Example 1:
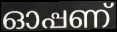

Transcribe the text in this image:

ഓപ്പണ്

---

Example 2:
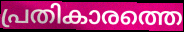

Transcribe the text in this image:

പ്രതികാരത്തെ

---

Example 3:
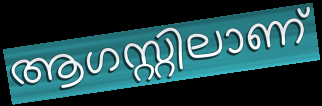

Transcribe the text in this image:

ആഗസ്റ്റിലാണ്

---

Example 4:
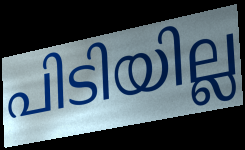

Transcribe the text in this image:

പിടിയില്ല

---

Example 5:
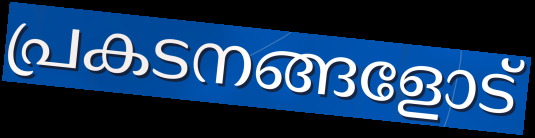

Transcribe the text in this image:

പ്രകടനങ്ങളോട്